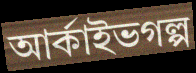
আর্কাইভগল্প